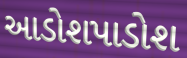
આડોશપાડોશ